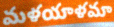
మళయాళమా